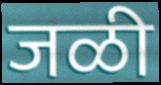
जळी